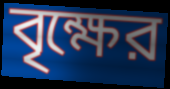
বৃক্ষের